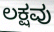
ಲಕ್ಷವು